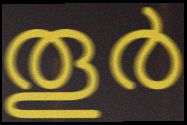
തൂർ